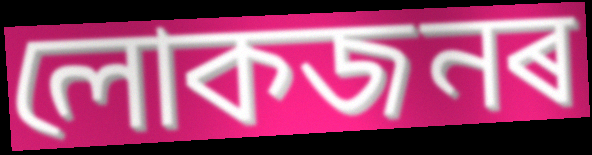
লোকজনৰ